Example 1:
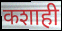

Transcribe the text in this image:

कशाही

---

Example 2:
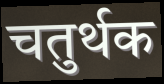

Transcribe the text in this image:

चतुर्थक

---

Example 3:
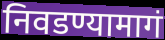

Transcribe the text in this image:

निवडण्यामागं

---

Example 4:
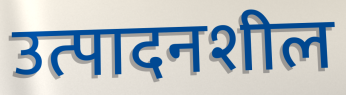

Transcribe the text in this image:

उत्पादनशील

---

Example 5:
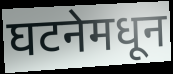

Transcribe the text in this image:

घटनेमधून